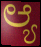
ಆ್ಯ